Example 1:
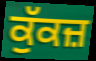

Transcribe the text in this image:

ਕੁੱਕਜ਼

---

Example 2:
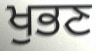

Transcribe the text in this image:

ਖੁਭਣ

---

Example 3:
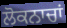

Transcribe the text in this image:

ਲੋਕਨਾਚਾਂ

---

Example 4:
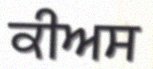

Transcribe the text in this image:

ਕੀਅਸ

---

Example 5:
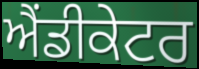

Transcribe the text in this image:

ਐਂਡੀਕੇਟਰ